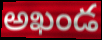
అఖండ